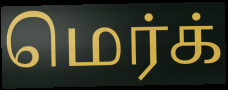
மெர்க்